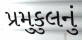
પ્રમુકુલનું